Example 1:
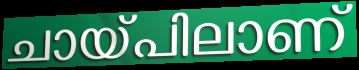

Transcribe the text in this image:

ചായ്പിലാണ്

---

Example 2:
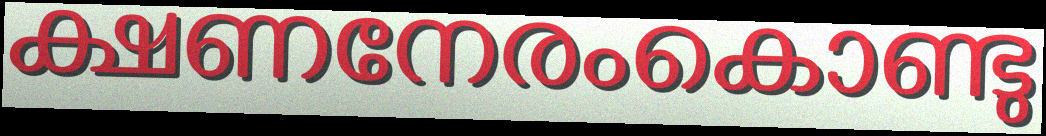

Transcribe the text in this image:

ക്ഷണനേരംകൊണ്ടു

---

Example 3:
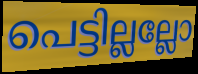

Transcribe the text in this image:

പെട്ടില്ലല്ലോ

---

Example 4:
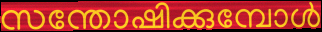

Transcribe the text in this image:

സന്തോഷിക്കുമ്പോൾ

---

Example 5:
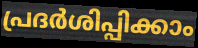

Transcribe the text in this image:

പ്രദർശിപ്പിക്കാം